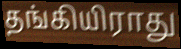
தங்கியிராது